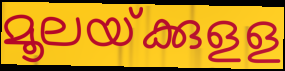
മൂലയ്‌ക്കുളള